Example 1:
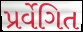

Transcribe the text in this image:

પ્રર્વેગિત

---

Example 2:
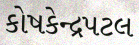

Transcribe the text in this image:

કોષકેન્દ્રપટલ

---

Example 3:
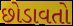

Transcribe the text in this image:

છોડાવતો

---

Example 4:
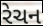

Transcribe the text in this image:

રેચન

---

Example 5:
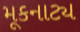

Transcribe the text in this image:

મૂકનાટ્ય